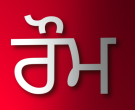
ਰੌਮ